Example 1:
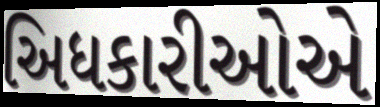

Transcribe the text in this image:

અિધકારીઓએ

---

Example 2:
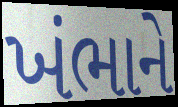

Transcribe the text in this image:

ખંભાને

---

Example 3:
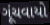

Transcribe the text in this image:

ગૂંચવાયો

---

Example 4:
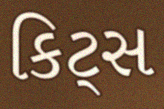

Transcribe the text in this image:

કિટ્સ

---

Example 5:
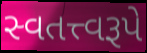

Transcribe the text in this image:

સ્વતત્ત્વરૂપે